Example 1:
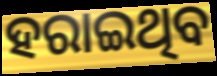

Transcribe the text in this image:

ହରାଇଥିବ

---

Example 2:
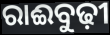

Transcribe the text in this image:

ରାଈବୁଢ଼ୀ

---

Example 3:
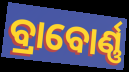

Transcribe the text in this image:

ବ୍ରାବୋର୍ଣ୍ଣ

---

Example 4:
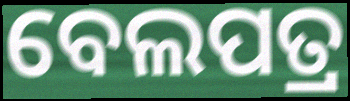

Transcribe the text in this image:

ବେଲପତ୍ର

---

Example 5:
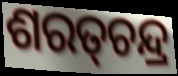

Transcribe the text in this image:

ଶରତ୍‌ଚନ୍ଦ୍ର